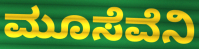
ಮೂಸೆವೆನಿ